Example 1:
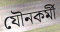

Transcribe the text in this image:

যৌনকৰ্মী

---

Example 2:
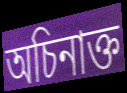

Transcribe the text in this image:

অচিনাক্ত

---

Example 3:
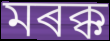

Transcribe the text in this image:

মৰক্ক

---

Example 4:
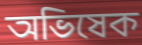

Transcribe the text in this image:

অভিষেক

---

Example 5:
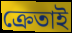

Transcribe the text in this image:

ক্ৰেতাই